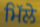
ਮਿੱਲੇ